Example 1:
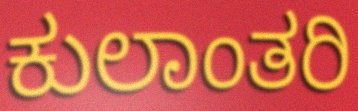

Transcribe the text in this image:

ಕುಲಾಂತರಿ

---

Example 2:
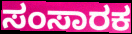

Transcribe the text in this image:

ಸಂಸಾರಕ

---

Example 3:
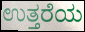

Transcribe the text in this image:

ಉತ್ತರೆಯ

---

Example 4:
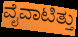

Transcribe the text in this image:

ವೈವಾಟಿತ್ತು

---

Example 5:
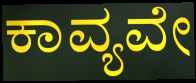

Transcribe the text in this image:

ಕಾವ್ಯವೇ